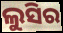
ଲୁସିର